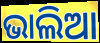
ଭାଲିଆ